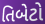
તિબેટો